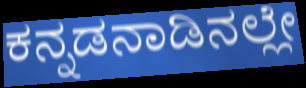
ಕನ್ನಡನಾಡಿನಲ್ಲೇ